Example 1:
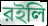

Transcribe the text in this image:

রইলি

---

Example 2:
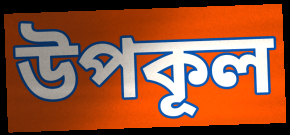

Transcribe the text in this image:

উপকূল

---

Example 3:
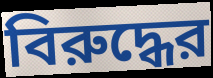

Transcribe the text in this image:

বিরুদ্ধের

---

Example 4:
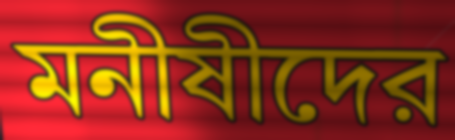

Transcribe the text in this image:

মনীষীদের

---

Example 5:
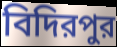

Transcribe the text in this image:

বিদিরপুর